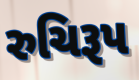
રુચિરૂપ